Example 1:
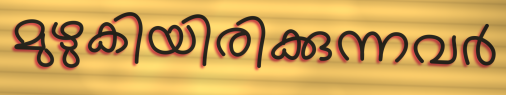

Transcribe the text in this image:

മുഴുകിയിരിക്കുന്നവർ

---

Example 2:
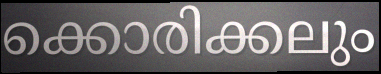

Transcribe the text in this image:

ക്കൊരിക്കലും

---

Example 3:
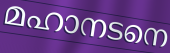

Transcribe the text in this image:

മഹാനടനെ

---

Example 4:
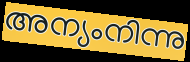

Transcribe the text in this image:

അന്യംനിന്നു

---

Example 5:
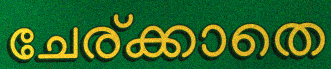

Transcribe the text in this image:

ചേര്ക്കാതെ